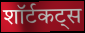
शॉर्टकट्स